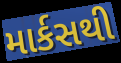
માર્કસથી